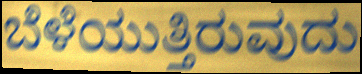
ಬೆಳೆಯುತ್ತಿರುವುದು